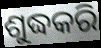
ଶୁଦ୍ଧକରି